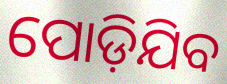
ପୋଡ଼ିଯିବ